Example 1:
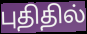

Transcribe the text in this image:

புதிதில்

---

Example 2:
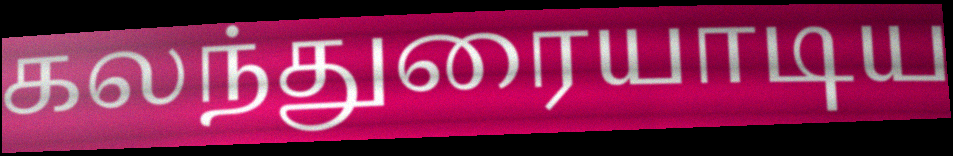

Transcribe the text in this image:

கலந்துரையாடிய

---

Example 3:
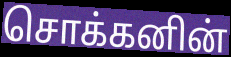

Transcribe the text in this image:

சொக்கனின்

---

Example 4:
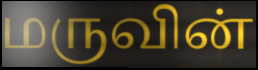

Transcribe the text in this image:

மருவின்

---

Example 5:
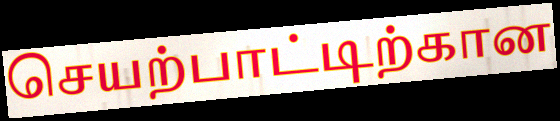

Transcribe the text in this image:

செயற்பாட்டிற்கான